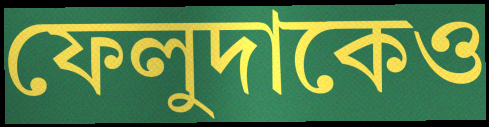
ফেলুদাকেও